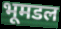
भूमडल